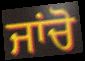
ਜਾਂਚੋ